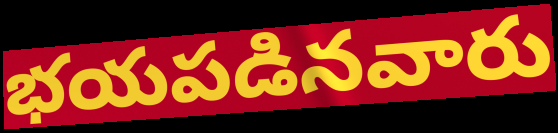
భయపడినవారు